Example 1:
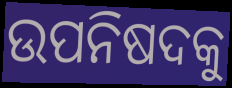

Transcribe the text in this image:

ଉପନିଷଦକୁ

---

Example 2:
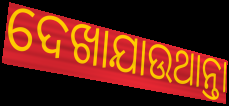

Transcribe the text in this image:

ଦେଖାଯାଉଥାନ୍ତା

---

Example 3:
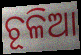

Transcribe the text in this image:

ଚୂଳିଆ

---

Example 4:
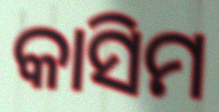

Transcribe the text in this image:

କାସିମ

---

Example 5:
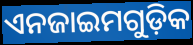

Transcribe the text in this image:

ଏନଜାଇମଗୁଡ଼ିକ